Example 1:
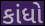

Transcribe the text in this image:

કાંધો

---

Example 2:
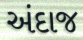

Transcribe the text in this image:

અંદાજ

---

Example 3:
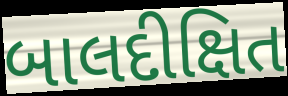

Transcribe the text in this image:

બાલદીક્ષિત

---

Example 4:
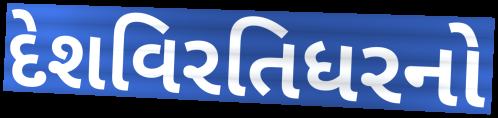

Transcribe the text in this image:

દેશવિરતિધરનો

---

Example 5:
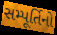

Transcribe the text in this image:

સમ્પૂર્તિનો